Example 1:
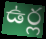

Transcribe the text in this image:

ఉర్ల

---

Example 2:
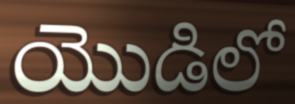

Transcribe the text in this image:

యొడిలో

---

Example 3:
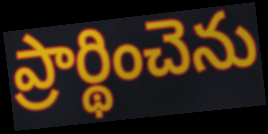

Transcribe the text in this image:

ప్రార్థించెను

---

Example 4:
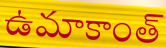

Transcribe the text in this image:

ఉమాకాంత్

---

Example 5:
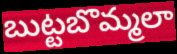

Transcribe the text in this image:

బుట్టబొమ్మలా